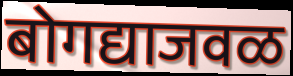
बोगद्याजवळ